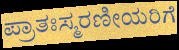
ಪ್ರಾತಃಸ್ಮರಣೀಯರಿಗೆ